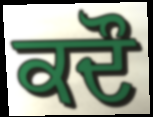
ਕਦੌ